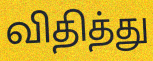
விதித்து